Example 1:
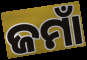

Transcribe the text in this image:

ଜମାଁ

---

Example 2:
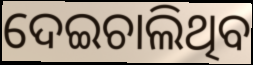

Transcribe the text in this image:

ଦେଇଚାଲିଥିବ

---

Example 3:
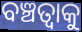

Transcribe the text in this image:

ବଞ୍ଚତ୍ବାକୁ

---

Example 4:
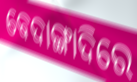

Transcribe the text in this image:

ବେଦାଙ୍ଗାଦିରେ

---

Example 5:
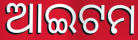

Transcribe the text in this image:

ଆଇଟମ